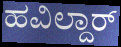
ಹವಿಲ್ದಾರ್